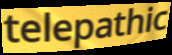
telepathic